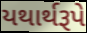
યથાર્થરૂપે